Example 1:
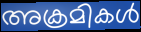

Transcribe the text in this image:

അക്രമികൾ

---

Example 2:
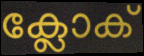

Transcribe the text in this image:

ക്ലോക്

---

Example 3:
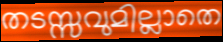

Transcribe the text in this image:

തടസ്സവുമില്ലാതെ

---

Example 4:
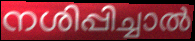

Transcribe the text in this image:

നശിപ്പിച്ചാൽ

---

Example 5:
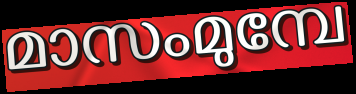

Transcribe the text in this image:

മാസംമുമ്പേ